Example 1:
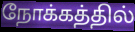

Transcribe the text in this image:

நோக்கத்தில்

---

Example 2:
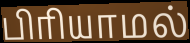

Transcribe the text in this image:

பிரியாமல்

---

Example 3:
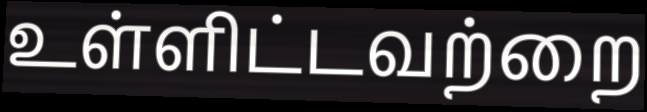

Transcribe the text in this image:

உள்ளிட்டவற்றை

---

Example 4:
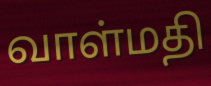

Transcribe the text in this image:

வாள்மதி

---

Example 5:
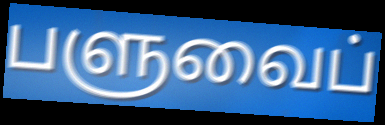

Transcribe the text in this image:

பளுவைப்